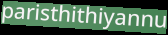
paristhithiyannu